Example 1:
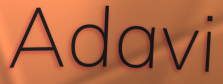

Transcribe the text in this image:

Adavi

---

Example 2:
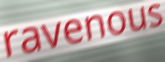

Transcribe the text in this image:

ravenous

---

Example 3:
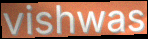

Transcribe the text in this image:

vishwas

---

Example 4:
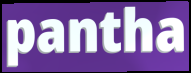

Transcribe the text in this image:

pantha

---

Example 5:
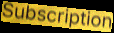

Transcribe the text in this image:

Subscription